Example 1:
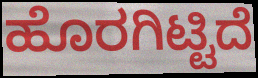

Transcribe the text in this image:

ಹೊರಗಿಟ್ಟಿದೆ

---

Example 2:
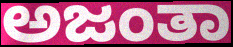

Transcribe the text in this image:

ಅಜಂತಾ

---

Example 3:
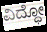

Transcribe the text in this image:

ವಿದ್ಧೋ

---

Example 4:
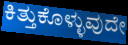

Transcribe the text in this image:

ಕಿತ್ತುಕೊಳ್ಳುವುದೇ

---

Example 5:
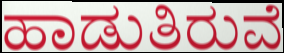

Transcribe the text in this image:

ಹಾಡುತಿರುವೆ